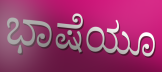
ಭಾಷೆಯೂ